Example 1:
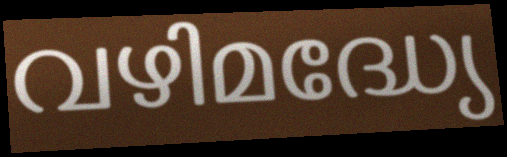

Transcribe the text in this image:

വഴിമദ്ധ്യേ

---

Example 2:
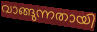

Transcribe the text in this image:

വാങ്ങുന്നതായി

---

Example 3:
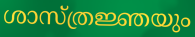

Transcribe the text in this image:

ശാസ്ത്രജ്ഞയും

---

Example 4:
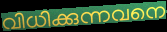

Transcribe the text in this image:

വിധിക്കുന്നവനെ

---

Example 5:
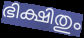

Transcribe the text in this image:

ഭിക്ഷിതും